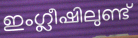
ഇംഗ്ലീഷിലുണ്ട്